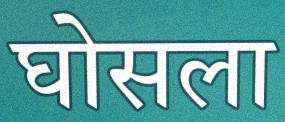
घोसला